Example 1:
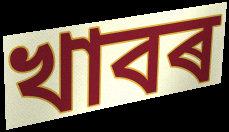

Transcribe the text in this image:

খাবৰ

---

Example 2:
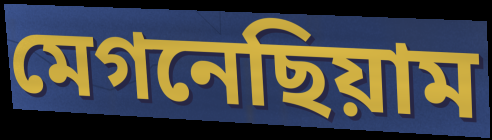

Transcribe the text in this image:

মেগনেছিয়াম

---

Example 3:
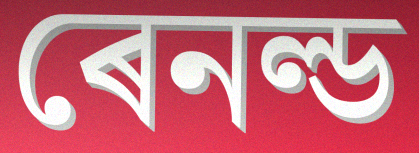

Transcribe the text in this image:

ৰেনল্ড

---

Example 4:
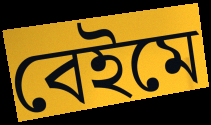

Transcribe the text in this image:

বেইমে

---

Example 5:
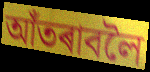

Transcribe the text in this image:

আঁতৰাবলৈ